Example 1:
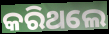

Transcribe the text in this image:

କରିଥଲେ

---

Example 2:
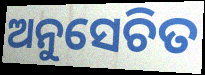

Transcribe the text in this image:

ଅନୁସେଚିତ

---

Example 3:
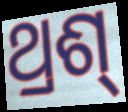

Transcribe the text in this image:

ଥ୍ରଶ୍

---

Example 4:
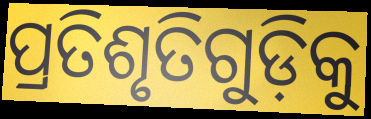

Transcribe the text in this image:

ପ୍ରତିଶୃତିଗୁଡ଼ିକୁ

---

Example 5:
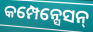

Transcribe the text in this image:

କମ୍ପେନ୍ସେସନ୍